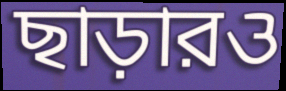
ছাড়ারও